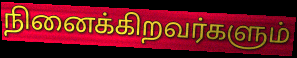
நினைக்கிறவர்களும்